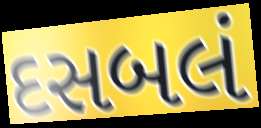
દસબલં